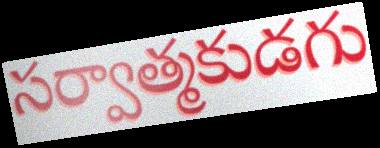
సర్వాత్మకుడగు